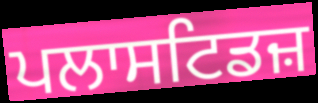
ਪਲਾਸਟਿਡਜ਼